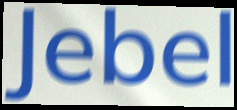
Jebel